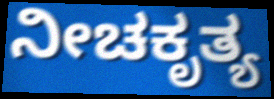
ನೀಚಕೃತ್ಯ